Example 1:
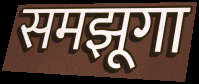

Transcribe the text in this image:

समझूगा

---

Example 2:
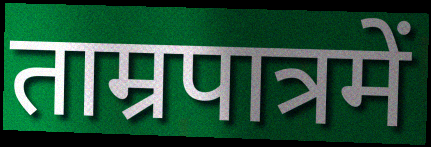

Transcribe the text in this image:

ताम्रपात्रमें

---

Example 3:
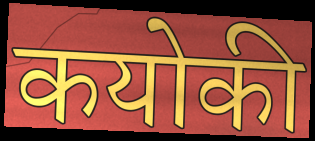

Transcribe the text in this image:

कयोकी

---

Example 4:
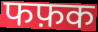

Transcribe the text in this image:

फफ़क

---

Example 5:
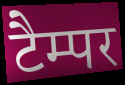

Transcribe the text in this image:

टैम्पर